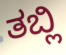
ತಬ್ಲಿ